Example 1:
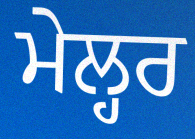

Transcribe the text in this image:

ਮੇਲ੍ਹਰ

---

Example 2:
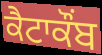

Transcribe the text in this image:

ਕੈਟਾਕੌਂਬ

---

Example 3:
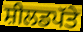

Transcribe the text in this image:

ਸ਼ੀਲਡਪੱਤੇ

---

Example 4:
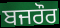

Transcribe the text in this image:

ਬਜਰੌਰ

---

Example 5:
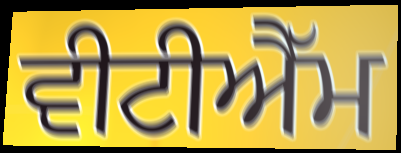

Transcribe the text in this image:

ਵੀਟੀਐੱਮ